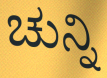
ಚುನ್ನಿ